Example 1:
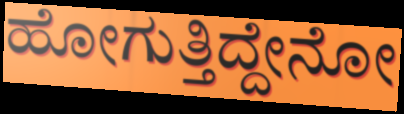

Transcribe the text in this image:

ಹೋಗುತ್ತಿದ್ದೇನೋ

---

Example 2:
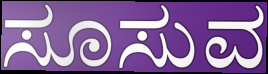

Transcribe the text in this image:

ಸೂಸುವ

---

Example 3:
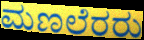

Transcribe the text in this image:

ಮಣಲೆರರು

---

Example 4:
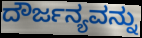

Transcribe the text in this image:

ದೌರ್ಜನ್ಯವನ್ನು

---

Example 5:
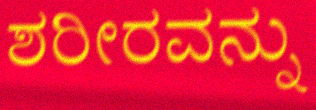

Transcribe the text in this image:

ಶರೀರವನ್ನು